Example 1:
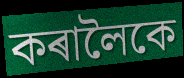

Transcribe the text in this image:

কৰালৈকে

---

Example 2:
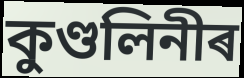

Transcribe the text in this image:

কুণ্ডলিনীৰ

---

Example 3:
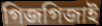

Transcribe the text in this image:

গিজগিজাই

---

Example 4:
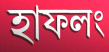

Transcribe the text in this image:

হাফলং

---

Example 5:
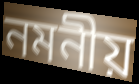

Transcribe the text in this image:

নমনীয়